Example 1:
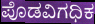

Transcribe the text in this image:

ಪೊಡವಿಗಧಿಕ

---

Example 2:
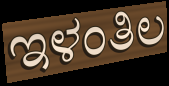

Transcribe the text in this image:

ಇಳಂತಿಲ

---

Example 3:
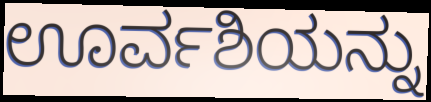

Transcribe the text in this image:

ಊರ್ವಶಿಯನ್ನು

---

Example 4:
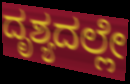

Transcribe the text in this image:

ದೃಶ್ಯದಲ್ಲೇ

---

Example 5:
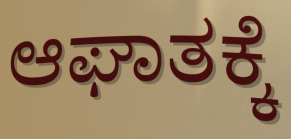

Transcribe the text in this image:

ಆಘಾತಕ್ಕೆ